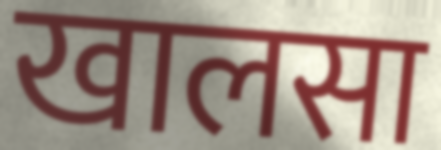
खालसा